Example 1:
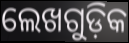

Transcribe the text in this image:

ଲେଖଗୁଡ଼ିକ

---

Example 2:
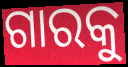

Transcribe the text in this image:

ଗାରକୁ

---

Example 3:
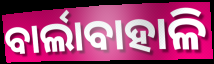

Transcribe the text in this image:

ବାର୍ଲାବାହାଳି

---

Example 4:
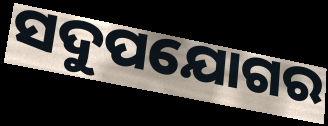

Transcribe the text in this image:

ସଦୁପଯୋଗର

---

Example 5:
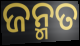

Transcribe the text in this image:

ଜନ୍ମତ